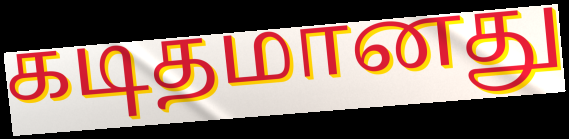
கடிதமானது